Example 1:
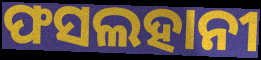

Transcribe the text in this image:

ଫସଲହାନୀ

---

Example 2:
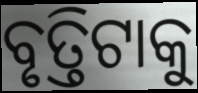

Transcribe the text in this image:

ବୃତ୍ତିଟାକୁ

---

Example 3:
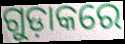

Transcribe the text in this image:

ଗୁଡ଼ାକରେ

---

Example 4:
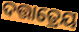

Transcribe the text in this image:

ଦତ୍ତାତ୍ରେୟ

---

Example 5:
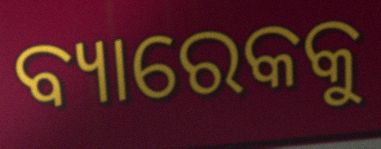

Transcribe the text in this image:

ବ୍ୟାରେକକୁ